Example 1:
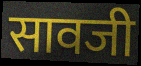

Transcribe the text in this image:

सावजी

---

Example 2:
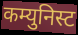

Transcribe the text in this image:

कम्युनिस्ट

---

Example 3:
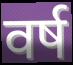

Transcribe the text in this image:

वर्ष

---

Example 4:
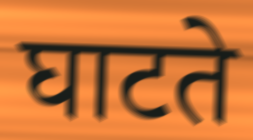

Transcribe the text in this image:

घाटते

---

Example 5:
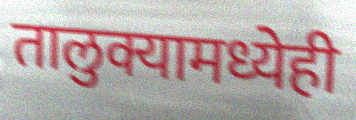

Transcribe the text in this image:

तालुक्यामध्येही